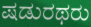
ಷಡುರಥರು